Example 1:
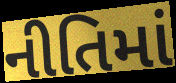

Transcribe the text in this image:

નીતિમાં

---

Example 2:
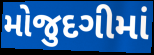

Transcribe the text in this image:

મોજુદગીમાં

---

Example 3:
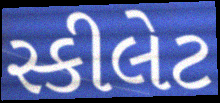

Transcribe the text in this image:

સ્કીલેટ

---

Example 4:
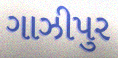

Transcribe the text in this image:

ગાઝીપુર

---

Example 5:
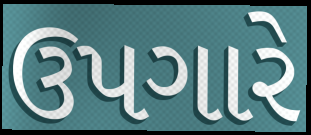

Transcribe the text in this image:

ઉપગારે